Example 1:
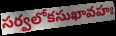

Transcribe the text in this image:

సర్వలోకసుఖావహః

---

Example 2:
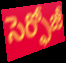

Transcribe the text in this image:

సెర్ఫోజీ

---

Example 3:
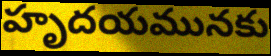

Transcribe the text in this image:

హృదయమునకు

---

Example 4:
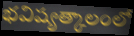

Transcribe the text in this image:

భవిష్యత్కాలంలో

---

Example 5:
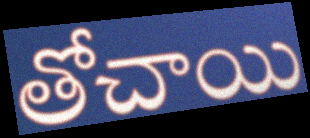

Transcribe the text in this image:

తోచాయి